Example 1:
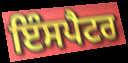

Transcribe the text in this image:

ਇੰਸਪੈਟਰ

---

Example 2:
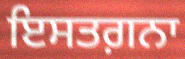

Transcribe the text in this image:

ਇਸਤਗ਼ਨਾ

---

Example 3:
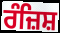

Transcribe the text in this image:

ਰੰਜ਼ਿਸ਼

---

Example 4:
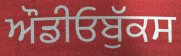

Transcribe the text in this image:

ਔਡੀਓਬੁੱਕਸ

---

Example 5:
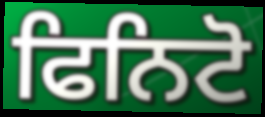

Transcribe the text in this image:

ਫਿਨਿਟੋ